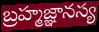
బ్రహ్మజ్ఞానస్య